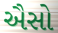
ઐસો